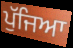
ਪੁੱਜਿਆ